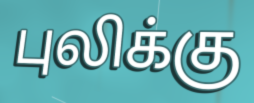
புலிக்கு